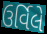
ઉર્વિલે